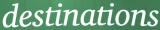
destinations